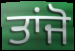
ਤਾਂਜੋ